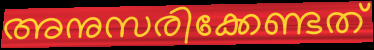
അനുസരിക്കേണ്ടത്